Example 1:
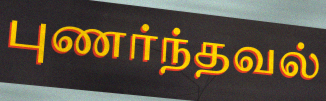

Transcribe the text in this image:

புணர்ந்தவல்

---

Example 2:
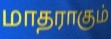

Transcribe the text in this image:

மாதராகும்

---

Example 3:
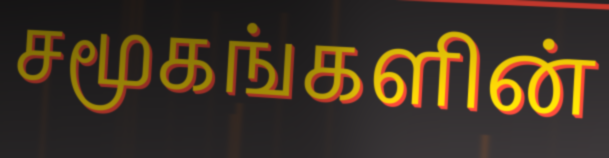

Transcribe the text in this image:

சமூகங்களின்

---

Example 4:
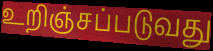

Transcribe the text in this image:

உறிஞ்சப்படுவது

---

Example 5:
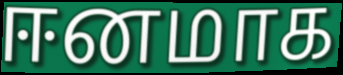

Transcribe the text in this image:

ஈனமாக